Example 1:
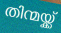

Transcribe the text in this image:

തിന്മയ്ക്ക്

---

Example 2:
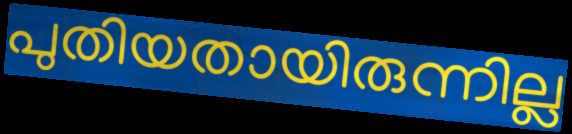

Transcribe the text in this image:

പുതിയതായിരുന്നില്ല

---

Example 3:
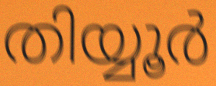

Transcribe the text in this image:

തിയ്യൂർ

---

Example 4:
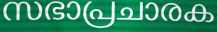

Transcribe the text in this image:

സഭാപ്രചാരക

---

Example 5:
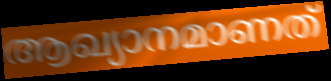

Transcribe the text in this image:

ആഖ്യാനമാണത്